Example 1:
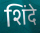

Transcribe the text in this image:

शिंदे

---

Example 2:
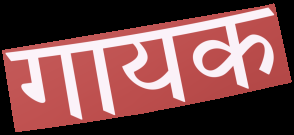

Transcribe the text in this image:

गायक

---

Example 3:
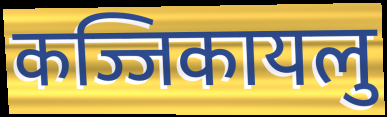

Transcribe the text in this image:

कज्जिकायलु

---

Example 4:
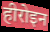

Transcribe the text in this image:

हीरोइन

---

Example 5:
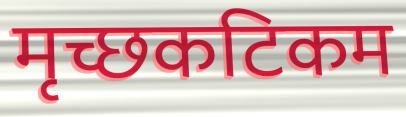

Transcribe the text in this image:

मृच्छकटिकम